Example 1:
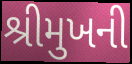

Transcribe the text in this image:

શ્રીમુખની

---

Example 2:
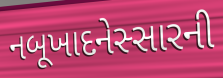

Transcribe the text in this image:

નબૂખાદનેસ્સારની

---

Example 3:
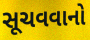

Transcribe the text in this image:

સૂચવવાનો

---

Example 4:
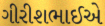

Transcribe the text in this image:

ગીરીશભાઈએ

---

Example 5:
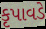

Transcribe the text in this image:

કૃપાવડે